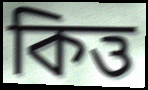
কিত্ত